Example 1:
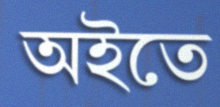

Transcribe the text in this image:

অইতে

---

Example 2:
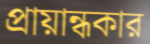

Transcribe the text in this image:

প্রায়ান্ধকার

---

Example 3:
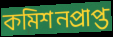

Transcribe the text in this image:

কমিশনপ্রাপ্ত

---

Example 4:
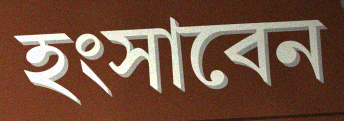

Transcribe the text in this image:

হংসাবেন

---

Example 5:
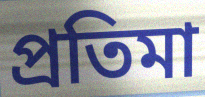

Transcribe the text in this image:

প্রতিমা